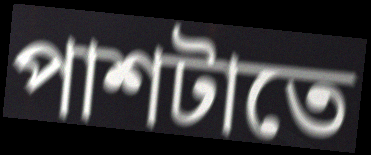
পাশটাতে